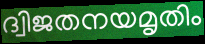
ദ്വിജതനയമൃതിം